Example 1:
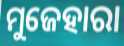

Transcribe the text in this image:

ମୁଜେହାରା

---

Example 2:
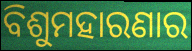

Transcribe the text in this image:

ବିଶୁମହାରଣାର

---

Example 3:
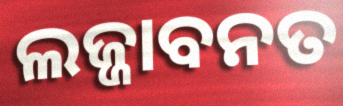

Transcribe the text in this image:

ଲଜ୍ଜାବନତ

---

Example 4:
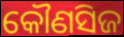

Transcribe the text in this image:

କୌଣସିଜ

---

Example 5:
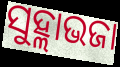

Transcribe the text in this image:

ସୁହ୍ଲାଭଜା